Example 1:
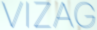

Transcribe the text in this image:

VIZAG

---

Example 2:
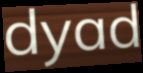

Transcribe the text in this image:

dyad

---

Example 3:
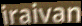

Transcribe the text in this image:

iraivan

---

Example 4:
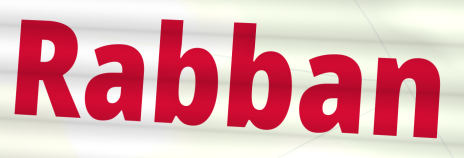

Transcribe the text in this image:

Rabban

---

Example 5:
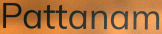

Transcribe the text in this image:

Pattanam